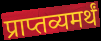
प्राप्तव्यमर्थं